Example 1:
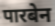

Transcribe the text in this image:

पारबेन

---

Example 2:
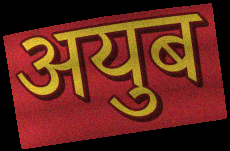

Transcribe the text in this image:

अयुब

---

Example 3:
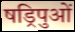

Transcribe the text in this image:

षड्रिपुओं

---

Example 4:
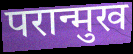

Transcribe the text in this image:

परान्मुख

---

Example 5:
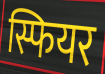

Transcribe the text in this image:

स्फियर